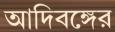
আদিবঙ্গের